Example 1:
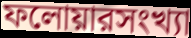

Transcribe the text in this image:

ফলোয়ারসংখ্যা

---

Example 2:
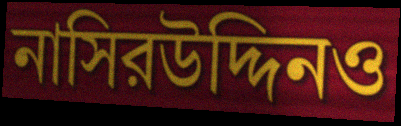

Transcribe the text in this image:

নাসিরউদ্দিনও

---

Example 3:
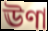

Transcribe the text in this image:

ঊণা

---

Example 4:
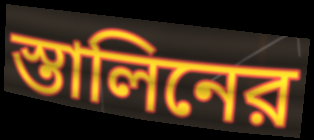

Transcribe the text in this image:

স্তালিনের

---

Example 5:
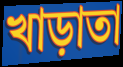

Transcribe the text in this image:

খাড়াতা